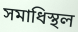
সমাধিস্থল